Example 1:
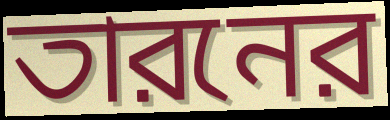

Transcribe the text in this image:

তারনের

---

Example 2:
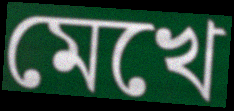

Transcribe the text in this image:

মেখে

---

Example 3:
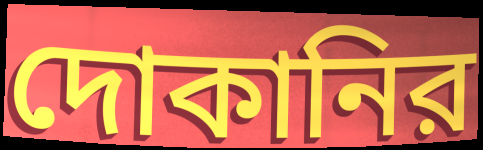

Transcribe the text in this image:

দোকানির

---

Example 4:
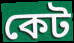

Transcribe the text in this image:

কেট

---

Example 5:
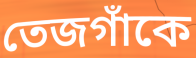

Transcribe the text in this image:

তেজগাঁকে